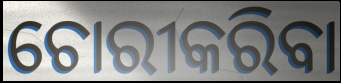
ଚୋରୀକରିବା